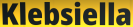
Klebsiella